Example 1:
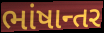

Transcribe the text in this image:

ભાંષાન્તર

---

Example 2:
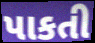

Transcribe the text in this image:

પાકતી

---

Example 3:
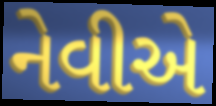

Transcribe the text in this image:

નેવીએ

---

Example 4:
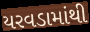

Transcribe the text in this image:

યરવડામાંથી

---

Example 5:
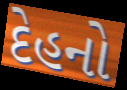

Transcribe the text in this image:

દેહનો